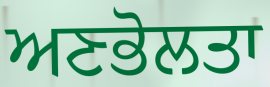
ਅਣਭੋਲਤਾ